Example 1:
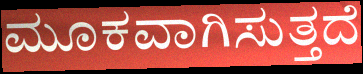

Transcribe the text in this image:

ಮೂಕವಾಗಿಸುತ್ತದೆ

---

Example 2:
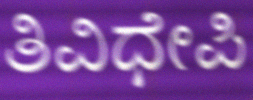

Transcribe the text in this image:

ತಿವಿಧೇಪಿ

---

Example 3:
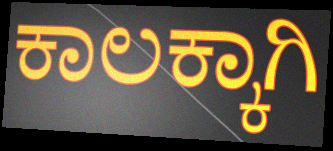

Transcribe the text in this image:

ಕಾಲಕ್ಕಾಗಿ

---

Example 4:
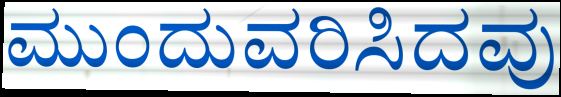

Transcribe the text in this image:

ಮುಂದುವರಿಸಿದವು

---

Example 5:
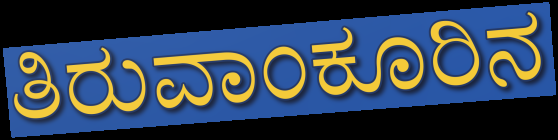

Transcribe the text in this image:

ತಿರುವಾಂಕೂರಿನ